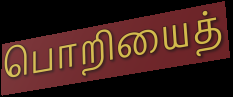
பொறியைத்